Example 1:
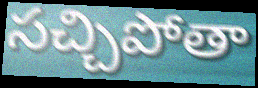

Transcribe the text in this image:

సచ్చిపోతా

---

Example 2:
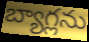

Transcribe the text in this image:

బ్యాగ్లను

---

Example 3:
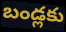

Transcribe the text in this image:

బండ్లకు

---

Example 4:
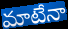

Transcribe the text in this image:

మాటేనా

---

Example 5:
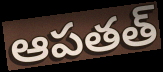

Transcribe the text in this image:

ఆపతత్